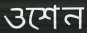
ওশেন